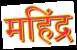
महिंद्र